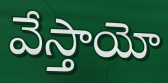
వేస్తాయో